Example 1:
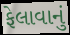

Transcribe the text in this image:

ફેલાવાનું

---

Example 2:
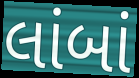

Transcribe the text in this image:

લાંબાં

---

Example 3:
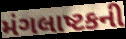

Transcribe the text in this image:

મંગલાષ્ટકની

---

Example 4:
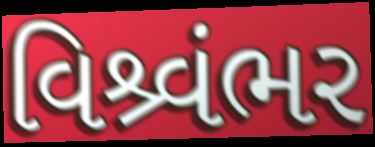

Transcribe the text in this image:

વિશ્ર્વંભર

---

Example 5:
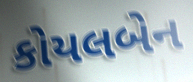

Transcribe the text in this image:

કોયલબેન